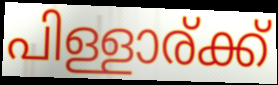
പിള്ളാര്ക്ക്